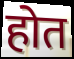
होत